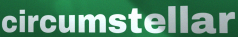
circumstellar